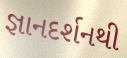
જ્ઞાનદર્શનથી